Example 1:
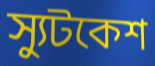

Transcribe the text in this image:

স্যুটকেশ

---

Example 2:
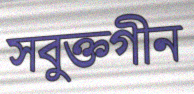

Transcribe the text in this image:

সবুক্তগীন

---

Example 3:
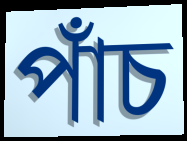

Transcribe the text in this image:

পাঁচ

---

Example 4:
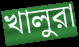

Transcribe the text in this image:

খালুরা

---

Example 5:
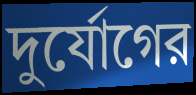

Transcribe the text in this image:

দুর্যোগের